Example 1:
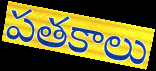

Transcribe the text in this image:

పతకాలు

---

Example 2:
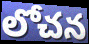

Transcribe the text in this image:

లోచన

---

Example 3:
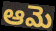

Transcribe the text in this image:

ఆమె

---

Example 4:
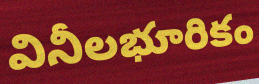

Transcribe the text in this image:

వినీలభూరికం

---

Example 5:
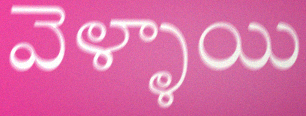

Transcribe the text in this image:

వెళ్ళాయి